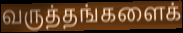
வருத்தங்களைக்